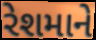
રેશમાને